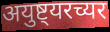
अयुष्ट्यरच्यर